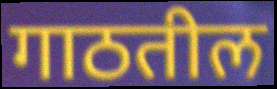
गाठतील